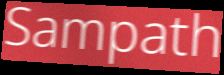
Sampath